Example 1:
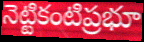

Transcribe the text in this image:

నెట్టికంటిప్రభూ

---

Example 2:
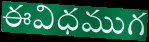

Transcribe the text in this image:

ఈవిధముగ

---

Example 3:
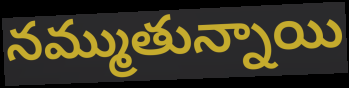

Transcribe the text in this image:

నమ్ముతున్నాయి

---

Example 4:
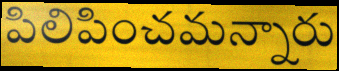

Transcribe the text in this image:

పిలిపించమన్నారు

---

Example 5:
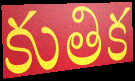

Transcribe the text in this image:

కుతిక